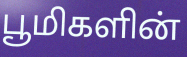
பூமிகளின்